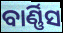
ବାର୍ଣ୍ଣିସ